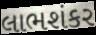
લાભશંકર